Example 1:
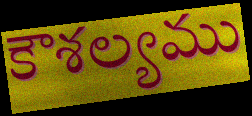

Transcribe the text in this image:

కౌశల్యము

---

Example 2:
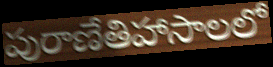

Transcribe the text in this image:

పురాణేతిహాసాలలో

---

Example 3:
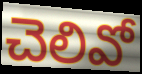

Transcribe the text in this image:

చెలివో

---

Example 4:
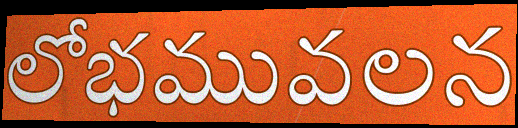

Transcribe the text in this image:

లోభమువలన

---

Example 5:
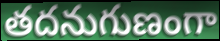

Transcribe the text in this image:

తదనుగుణంగా